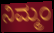
ನಿಮ್ಮಂ